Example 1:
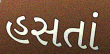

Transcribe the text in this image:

હસતાં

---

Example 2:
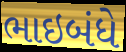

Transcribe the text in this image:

ભાઇબંધે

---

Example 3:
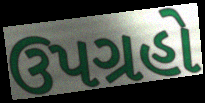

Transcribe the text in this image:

ઉપગ્રહો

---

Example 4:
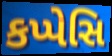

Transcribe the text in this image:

કપ્પેસિ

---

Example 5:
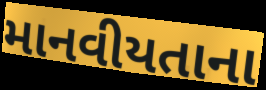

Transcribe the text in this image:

માનવીયતાના